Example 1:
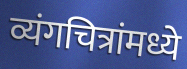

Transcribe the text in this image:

व्यंगचित्रांमध्ये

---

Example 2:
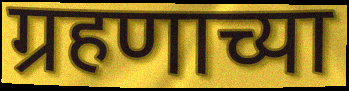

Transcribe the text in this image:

ग्रहणाच्या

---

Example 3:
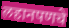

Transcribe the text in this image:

लहानपणचे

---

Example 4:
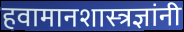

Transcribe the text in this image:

हवामानशास्त्रज्ञांनी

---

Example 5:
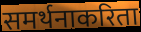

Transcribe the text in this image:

समर्थनाकरिता